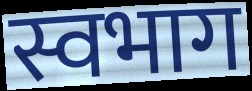
स्वभाग